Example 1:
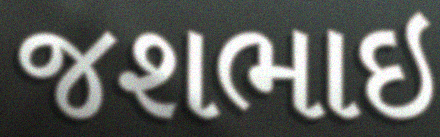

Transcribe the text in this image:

જશભાઇ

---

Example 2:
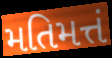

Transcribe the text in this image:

મતિમત્તં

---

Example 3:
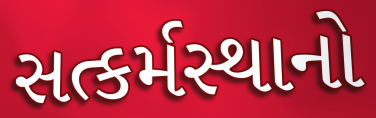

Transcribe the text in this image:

સત્કર્મસ્થાનો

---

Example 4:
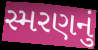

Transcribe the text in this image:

સ્મરણનું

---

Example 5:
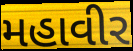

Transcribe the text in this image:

મહાવીર